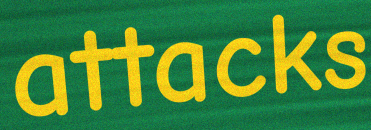
attacks